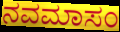
ನವಮಾಸಂ